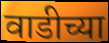
वाडीच्या